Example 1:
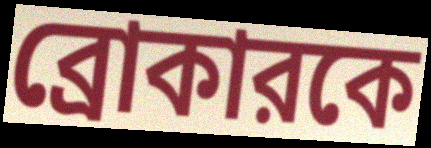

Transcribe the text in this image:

ব্রোকারকে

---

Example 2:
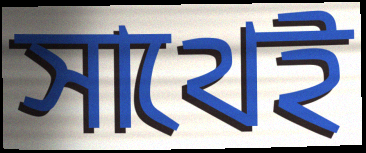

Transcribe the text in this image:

সাথেই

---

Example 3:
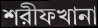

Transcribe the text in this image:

শরীফখানা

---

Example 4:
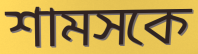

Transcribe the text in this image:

শামসকে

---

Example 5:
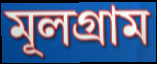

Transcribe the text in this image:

মূলগ্রাম